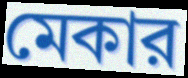
মেকার